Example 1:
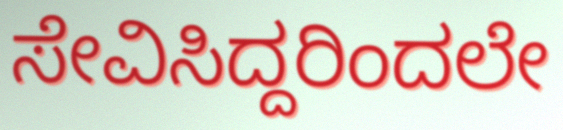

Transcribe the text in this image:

ಸೇವಿಸಿದ್ದರಿಂದಲೇ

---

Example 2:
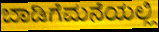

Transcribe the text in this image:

ಬಾಡಿಗೆಮನೆಯಲ್ಲಿ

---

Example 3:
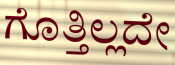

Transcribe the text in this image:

ಗೊತ್ತಿಲ್ಲದೇ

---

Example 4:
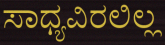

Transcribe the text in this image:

ಸಾಧ್ಯವಿರಲಿಲ್ಲ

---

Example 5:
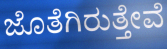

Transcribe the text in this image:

ಜೊತೆಗಿರುತ್ತೇವೆ